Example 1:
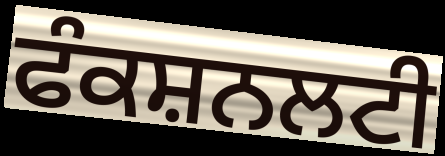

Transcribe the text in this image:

ਫੰਕਸ਼ਨਲਟੀ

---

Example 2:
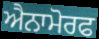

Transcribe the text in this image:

ਐਨਾਮੋਰਫ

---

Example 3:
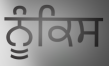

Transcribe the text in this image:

ਨੂੰਕਿਸ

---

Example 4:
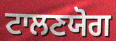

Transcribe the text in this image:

ਟਾਲਣਯੋਗ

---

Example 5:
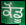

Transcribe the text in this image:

ਕੋਂਡੂ